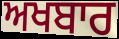
ਅਖਬਾਰ